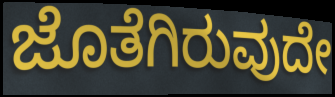
ಜೊತೆಗಿರುವುದೇ